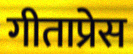
गीताप्रेस